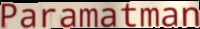
Paramatman